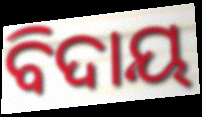
ବିଦାୟ